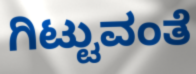
ಗಿಟ್ಟುವಂತೆ